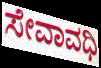
ಸೇವಾವಧಿ